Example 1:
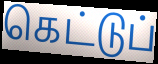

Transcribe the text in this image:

கெட்டுப்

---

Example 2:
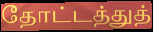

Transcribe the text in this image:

தோட்டத்துத்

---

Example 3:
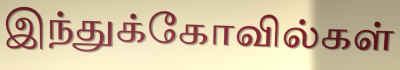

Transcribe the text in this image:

இந்துக்கோவில்கள்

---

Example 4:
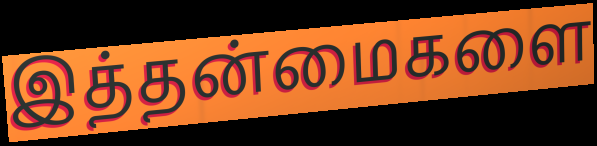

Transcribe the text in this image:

இத்தன்மைகளை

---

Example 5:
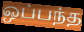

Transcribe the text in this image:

ஒப்பந்த